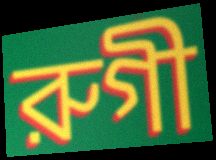
রুগী